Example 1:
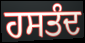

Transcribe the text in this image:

ਹਸਤੰਦ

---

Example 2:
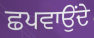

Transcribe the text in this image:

ਛਪਵਾਉਂਦੇ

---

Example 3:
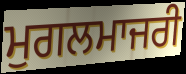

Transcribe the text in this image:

ਮੁਗਲਮਾਜਰੀ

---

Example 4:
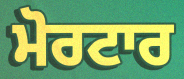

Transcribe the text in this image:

ਮੋਰਟਾਰ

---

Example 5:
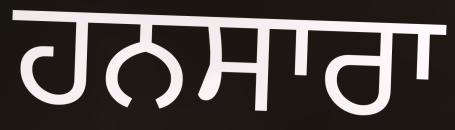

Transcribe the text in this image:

ਹਨਸਾਰਾ